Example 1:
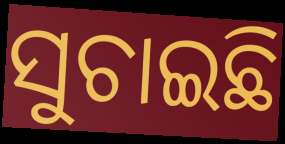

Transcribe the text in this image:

ସୁଚାଇଛି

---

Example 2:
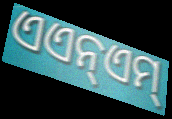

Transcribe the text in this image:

ଏଏନ୍ଏମ୍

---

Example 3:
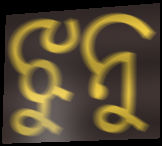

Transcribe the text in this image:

ଝୁନୁ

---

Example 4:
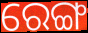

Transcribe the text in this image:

ରେଙ୍ଗ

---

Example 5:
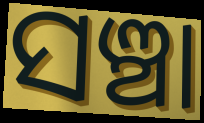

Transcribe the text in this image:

ସଞ୍ଚା